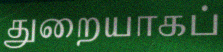
துறையாகப்